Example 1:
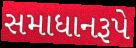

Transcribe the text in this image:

સમાધાનરૂપે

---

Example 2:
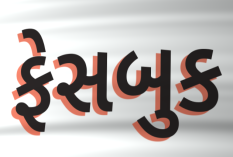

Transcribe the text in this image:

ફેસબુક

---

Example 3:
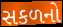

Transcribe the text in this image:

સકળનો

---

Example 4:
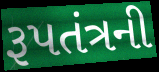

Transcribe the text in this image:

રૂપતંત્રની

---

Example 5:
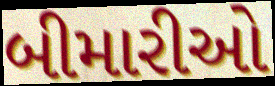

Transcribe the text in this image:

બીમારીઓ